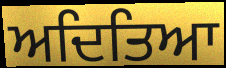
ਅਦਿਤਿਆ